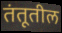
तंतूतील